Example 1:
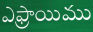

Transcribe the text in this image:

ఎఫ్రాయిము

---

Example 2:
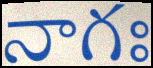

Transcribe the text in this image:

నాగః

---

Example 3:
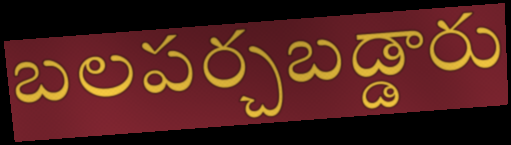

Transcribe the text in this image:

బలపర్చబడ్డారు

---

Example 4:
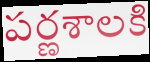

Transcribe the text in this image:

పర్ణశాలకి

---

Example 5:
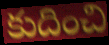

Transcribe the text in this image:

కుదించి